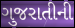
ગુજરાતીની